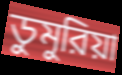
ডুমুরিয়া